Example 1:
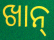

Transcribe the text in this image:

ଖାନ୍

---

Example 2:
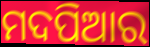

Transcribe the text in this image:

ମଦପିଆର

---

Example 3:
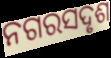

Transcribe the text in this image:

ନଗରସଦୃଶ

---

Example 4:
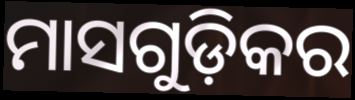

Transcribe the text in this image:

ମାସଗୁଡ଼ିକର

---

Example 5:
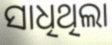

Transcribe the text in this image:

ସାଧିଥିଲା